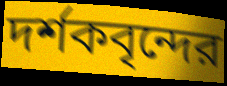
দর্শকবৃন্দের